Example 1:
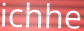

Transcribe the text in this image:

ichhe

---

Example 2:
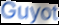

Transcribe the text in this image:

Guyot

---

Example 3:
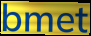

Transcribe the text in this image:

bmet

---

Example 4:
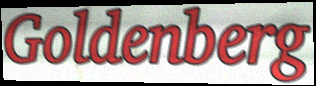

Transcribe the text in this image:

Goldenberg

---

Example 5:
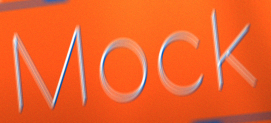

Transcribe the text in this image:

Mock